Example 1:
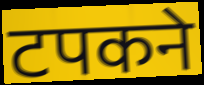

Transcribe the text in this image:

टपकने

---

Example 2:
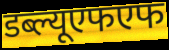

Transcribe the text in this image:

डब्ल्यूएफएफ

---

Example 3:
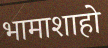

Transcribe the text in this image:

भामाशाहो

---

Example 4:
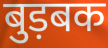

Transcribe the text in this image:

बुड़बक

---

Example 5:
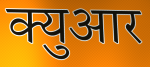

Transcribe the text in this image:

क्युआर